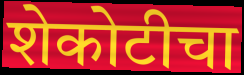
शेकोटीचा